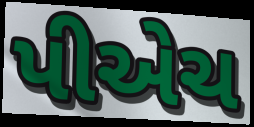
પીએચ